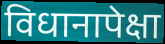
विधानापेक्षा